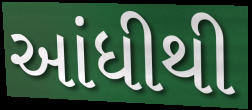
આંધીથી